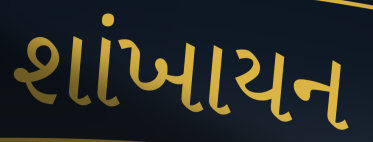
શાંખાયન